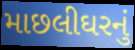
માછલીઘરનું